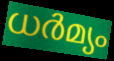
ധർമ്യം